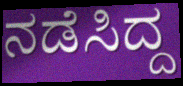
ನಡೆಸಿದ್ದ